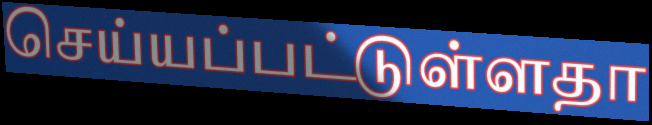
செய்யப்பட்டுள்ளதா